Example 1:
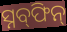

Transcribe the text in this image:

ସ୍ନବ୍‍ଫିନ୍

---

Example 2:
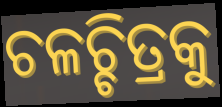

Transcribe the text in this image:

ଚଳଚ୍ଚିତ୍ରକୁ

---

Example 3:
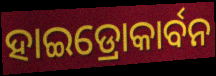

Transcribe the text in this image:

ହାଇଡ୍ରୋକାର୍ବନ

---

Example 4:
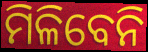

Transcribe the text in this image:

ମିଳିବେନି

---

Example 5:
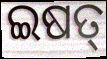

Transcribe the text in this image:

ଇଷତ୍